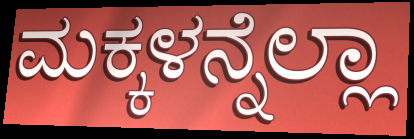
ಮಕ್ಕಳನ್ನೆಲ್ಲಾ